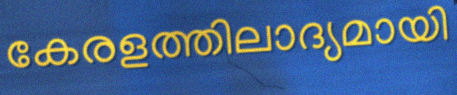
കേരളത്തിലാദ്യമായി